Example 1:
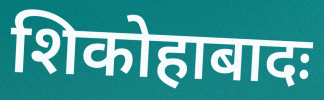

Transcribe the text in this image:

शिकोहाबादः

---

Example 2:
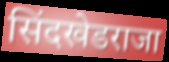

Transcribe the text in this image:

सिंदखेडराजा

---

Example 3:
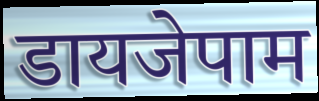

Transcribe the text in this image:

डायजेपाम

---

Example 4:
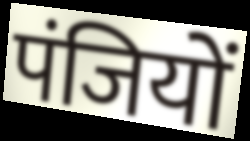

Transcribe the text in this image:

पंजियों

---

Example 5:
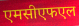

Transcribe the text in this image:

एमसीएफएल